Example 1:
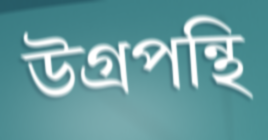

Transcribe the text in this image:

উগ্রপন্থি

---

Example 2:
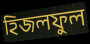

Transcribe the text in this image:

হিজলফুল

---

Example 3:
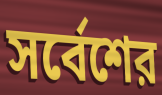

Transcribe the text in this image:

সর্বেশের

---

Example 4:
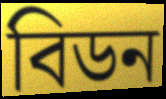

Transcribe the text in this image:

বিডন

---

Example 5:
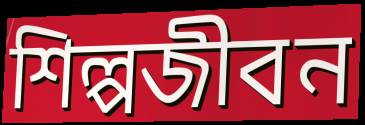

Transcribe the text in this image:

শিল্পজীবন